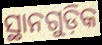
ସ୍ଥାନଗୁଡ଼ିକ